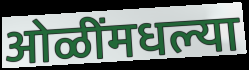
ओळींमधल्या